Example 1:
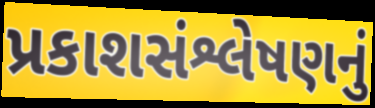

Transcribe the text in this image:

પ્રકાશસંશ્લેષણનું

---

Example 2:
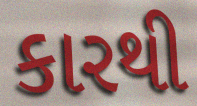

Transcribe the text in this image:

કારથી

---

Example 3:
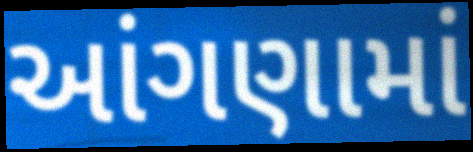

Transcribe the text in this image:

આંગણામાં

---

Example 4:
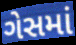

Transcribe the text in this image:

ગેસમાં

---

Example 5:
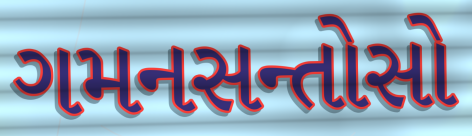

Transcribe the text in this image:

ગમનસન્તોસો